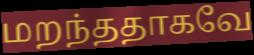
மறந்ததாகவே